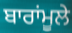
ਬਾਰਾਂਮੂਲੇ